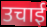
उचाई